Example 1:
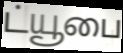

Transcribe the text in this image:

ட்யூபை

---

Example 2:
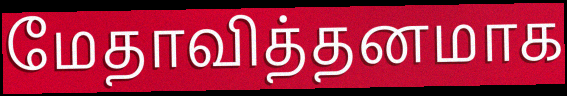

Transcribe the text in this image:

மேதாவித்தனமாக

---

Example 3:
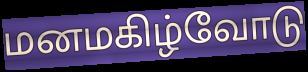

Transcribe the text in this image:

மனமகிழ்வோடு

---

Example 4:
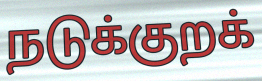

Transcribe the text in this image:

நடுக்குறக்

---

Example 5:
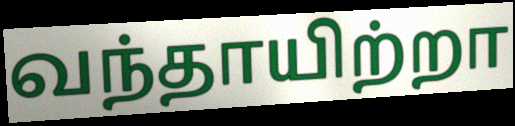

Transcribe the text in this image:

வந்தாயிற்றா